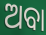
ଅବା